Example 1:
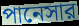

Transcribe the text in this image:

পানেসার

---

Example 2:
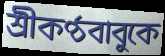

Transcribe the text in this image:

শ্রীকণ্ঠবাবুকে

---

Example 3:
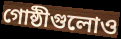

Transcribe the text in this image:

গোষ্ঠীগুলোও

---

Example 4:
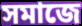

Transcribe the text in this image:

সমাজে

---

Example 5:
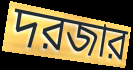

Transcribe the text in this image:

দরজার